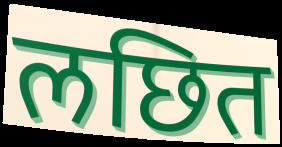
लछित